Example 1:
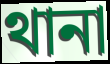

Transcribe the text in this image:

থানা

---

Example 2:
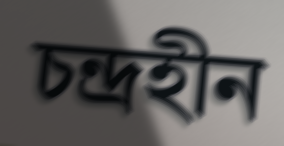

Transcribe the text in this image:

চন্দ্রহীন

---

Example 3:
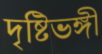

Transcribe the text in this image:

দৃষ্টিভঙ্গী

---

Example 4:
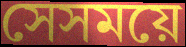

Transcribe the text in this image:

সেসময়ে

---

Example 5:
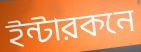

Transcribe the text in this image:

ইন্টারকনে